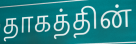
தாகத்தின்